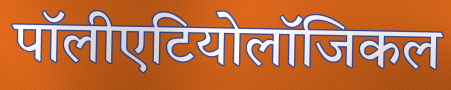
पॉलीएटियोलॉजिकल